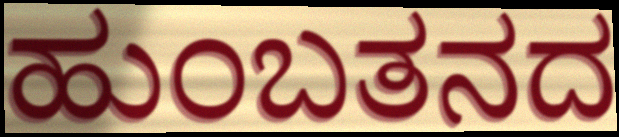
ಹುಂಬತನದ